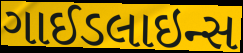
ગાઈડલાઇન્સ